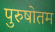
पुरुषोतम